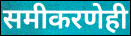
समीकरणेही